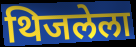
थिजलेला